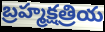
బ్రహ్మక్షత్రియ